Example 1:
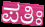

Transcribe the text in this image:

ಪತಿಃ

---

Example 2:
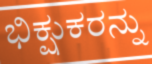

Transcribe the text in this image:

ಭಿಕ್ಷುಕರನ್ನು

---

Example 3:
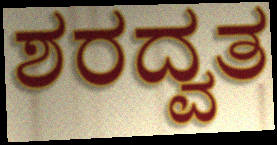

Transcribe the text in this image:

ಶರದ್ವತ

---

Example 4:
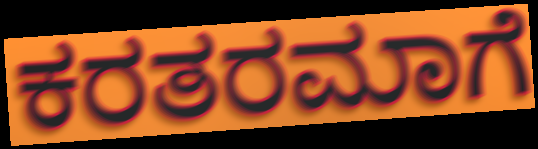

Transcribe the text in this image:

ಕರತರಮಾಗೆ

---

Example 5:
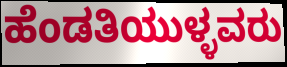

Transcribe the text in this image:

ಹೆಂಡತಿಯುಳ್ಳವರು